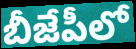
బీజేపీలో